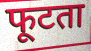
फूटता